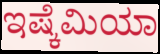
ಇಷ್ಕೆಮಿಯಾ